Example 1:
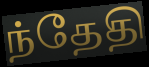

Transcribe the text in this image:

ந்தேதி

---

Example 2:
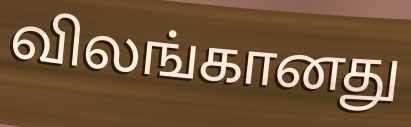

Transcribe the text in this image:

விலங்கானது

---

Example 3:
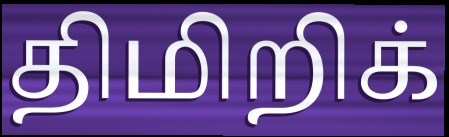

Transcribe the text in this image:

திமிறிக்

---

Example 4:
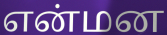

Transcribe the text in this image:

என்மன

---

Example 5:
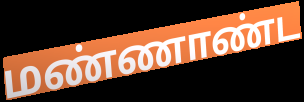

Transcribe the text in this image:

மண்ணாண்ட